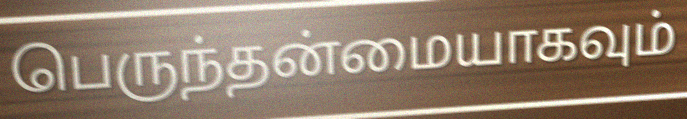
பெருந்தன்மையாகவும்